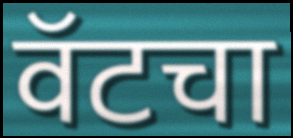
वॅटचा